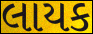
લાયક